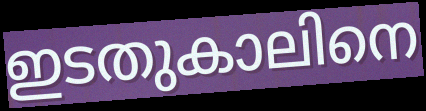
ഇടതുകാലിനെ